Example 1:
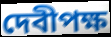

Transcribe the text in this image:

দেবীপক্ষ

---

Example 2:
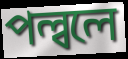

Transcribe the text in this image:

পল্বলে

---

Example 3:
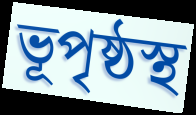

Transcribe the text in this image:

ভূপৃষ্ঠস্থ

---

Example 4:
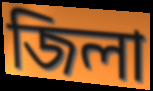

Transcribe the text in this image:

জিলা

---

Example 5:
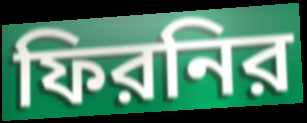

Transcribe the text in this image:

ফিরনির